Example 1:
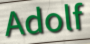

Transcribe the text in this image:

Adolf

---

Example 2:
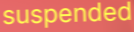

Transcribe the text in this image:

suspended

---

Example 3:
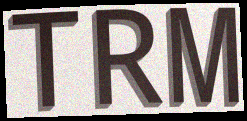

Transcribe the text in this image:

TRM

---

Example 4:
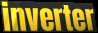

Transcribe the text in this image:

inverter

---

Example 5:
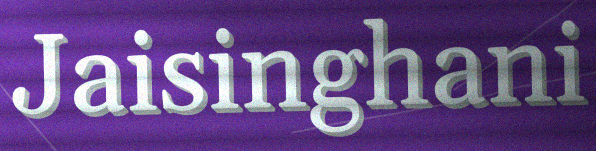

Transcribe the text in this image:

Jaisinghani